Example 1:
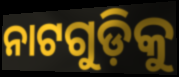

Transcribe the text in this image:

ନାଟଗୁଡ଼ିକୁ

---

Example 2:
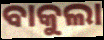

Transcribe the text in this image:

ବାକୁଲା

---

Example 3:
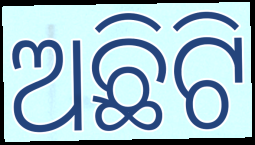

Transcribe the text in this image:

ଅଛିଟି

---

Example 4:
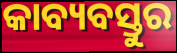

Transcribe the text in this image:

କାବ୍ୟବସ୍ତୁର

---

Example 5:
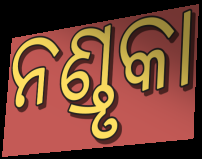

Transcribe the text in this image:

ନଣ୍ଡୃକା